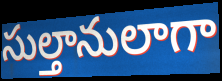
సుల్తానులాగా